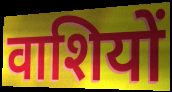
वाशियों